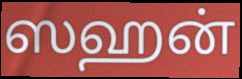
ஸஹன்